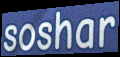
soshar